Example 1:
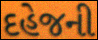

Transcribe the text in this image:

દહેજની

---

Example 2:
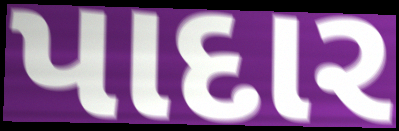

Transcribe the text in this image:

પાદાર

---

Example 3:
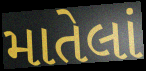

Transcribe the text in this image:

માતેલાં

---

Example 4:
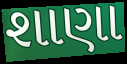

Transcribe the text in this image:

શાણા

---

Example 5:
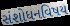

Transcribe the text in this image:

સંશોધનવિષય